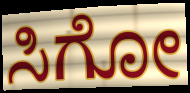
ಸಿಗೋ